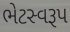
ભેટસ્વરૂપ